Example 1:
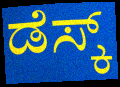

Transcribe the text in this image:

ಡೆಸ್ಕ್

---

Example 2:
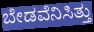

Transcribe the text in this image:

ಬೇಡವೆನಿಸಿತ್ತು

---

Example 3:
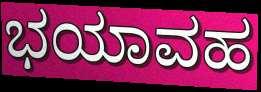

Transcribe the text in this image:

ಭಯಾವಹ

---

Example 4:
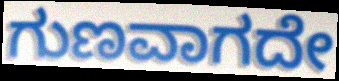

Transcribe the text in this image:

ಗುಣವಾಗದೇ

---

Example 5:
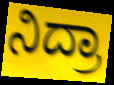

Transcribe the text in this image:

ನಿದ್ರಾ